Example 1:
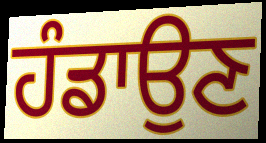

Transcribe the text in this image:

ਹੰਡਾਉਣ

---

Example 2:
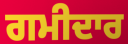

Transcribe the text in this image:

ਗਮੀਦਾਰ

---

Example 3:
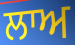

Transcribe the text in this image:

ਲਾਅ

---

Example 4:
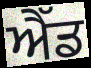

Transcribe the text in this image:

ਐੱਡ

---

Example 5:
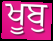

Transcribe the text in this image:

ਖੂਬੁ